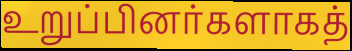
உறுப்பினர்களாகத்